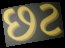
છટ